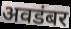
अवडंबर